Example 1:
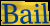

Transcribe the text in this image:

Bail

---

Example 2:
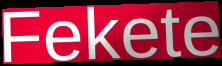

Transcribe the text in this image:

Fekete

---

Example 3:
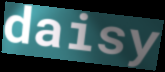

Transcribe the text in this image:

daisy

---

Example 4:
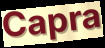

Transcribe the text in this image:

Capra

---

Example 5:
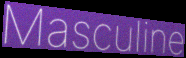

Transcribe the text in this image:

Masculine